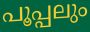
പൂപ്പലും